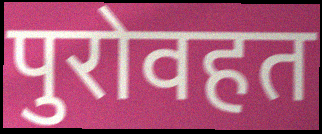
पुरोवहत